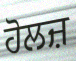
ਹੋਲਜ਼